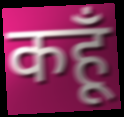
कहूँ